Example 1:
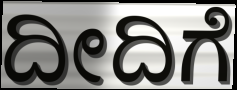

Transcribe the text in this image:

ದೀದಿಗೆ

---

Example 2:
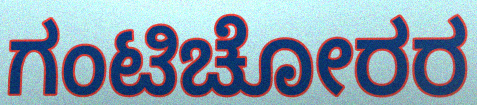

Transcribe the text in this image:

ಗಂಟಿಚೋರರ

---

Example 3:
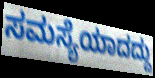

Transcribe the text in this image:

ಸಮಸ್ಯೆಯಾದದ್ದು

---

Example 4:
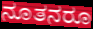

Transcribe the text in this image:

ನೂತನರೂ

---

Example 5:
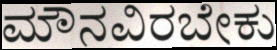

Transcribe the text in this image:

ಮೌನವಿರಬೇಕು